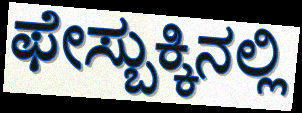
ಫೇಸ್ಬುಕ್ಕಿನಲ್ಲಿ